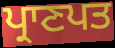
ਪ੍ਰਾਣਪਤ